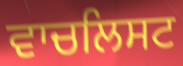
ਵਾਚਲਿਸਟ